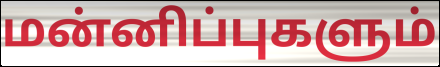
மன்னிப்புகளும்